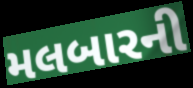
મલબારની